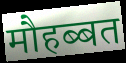
मौहब्बत